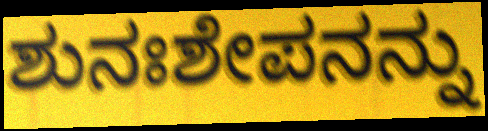
ಶುನಃಶೇಪನನ್ನು